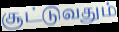
சூட்டுவதும்